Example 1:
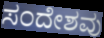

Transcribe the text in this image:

ಸಂದೇಶವು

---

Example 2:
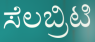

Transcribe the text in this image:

ಸೆಲಬ್ರಿಟಿ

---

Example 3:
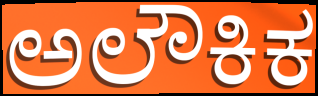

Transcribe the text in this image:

ಅಲೌಕಿಕ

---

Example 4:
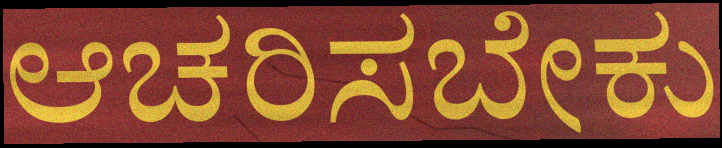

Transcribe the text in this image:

ಆಚರಿಸಬೇಕು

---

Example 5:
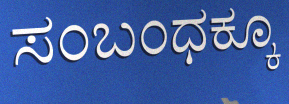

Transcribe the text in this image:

ಸಂಬಂಧಕ್ಕೂ